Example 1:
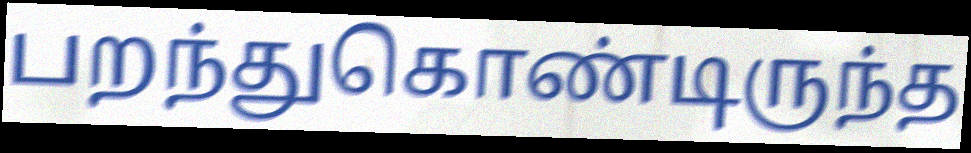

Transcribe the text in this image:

பறந்துகொண்டிருந்த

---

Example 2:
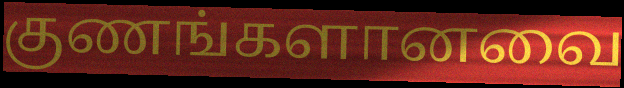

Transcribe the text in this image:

குணங்களானவை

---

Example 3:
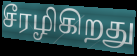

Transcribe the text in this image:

சீரழிகிறது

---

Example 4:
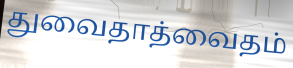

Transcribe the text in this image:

துவைதாத்வைதம்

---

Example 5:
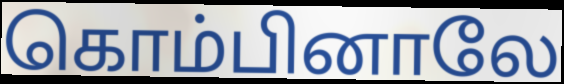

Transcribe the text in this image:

கொம்பினாலே